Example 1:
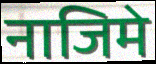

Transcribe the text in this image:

नाजिमे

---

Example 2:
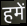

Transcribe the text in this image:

हमें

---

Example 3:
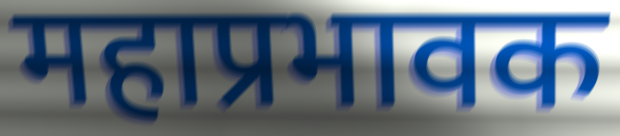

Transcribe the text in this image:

महाप्रभावक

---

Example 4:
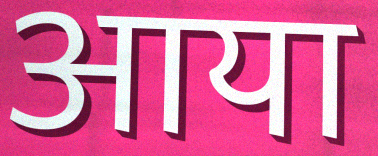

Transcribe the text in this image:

आया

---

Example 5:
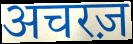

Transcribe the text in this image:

अचरज़